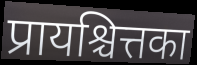
प्रायश्चित्तका